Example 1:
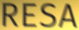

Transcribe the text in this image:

RESA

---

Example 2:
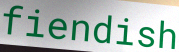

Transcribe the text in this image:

fiendish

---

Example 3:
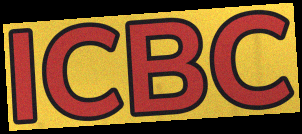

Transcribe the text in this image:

ICBC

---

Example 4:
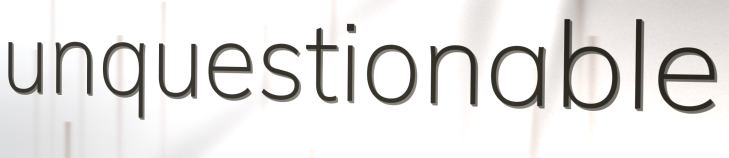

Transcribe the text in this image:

unquestionable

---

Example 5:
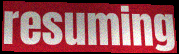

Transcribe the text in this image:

resuming